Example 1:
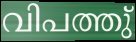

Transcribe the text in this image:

വിപത്തു്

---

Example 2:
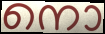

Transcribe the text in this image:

നൊ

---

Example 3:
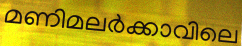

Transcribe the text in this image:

മണിമലർക്കാവിലെ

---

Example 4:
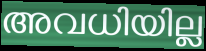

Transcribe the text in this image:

അവധിയില്ല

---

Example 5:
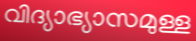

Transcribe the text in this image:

വിദ്യാഭ്യാസമുള്ള